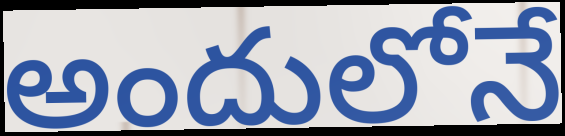
అందులోనే